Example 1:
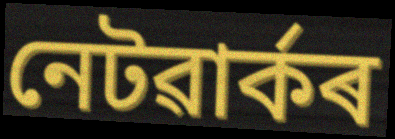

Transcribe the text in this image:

নেটৱাৰ্কৰ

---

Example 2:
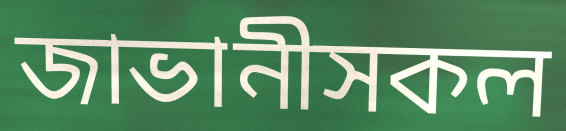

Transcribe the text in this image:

জাভানীসকল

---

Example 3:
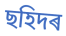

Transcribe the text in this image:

ছহিদৰ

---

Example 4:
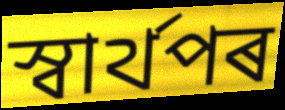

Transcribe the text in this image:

স্বাৰ্থপৰ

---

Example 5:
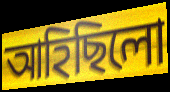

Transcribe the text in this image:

আহিছিলো